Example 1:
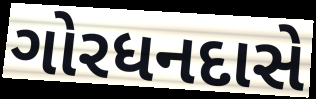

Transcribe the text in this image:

ગોરધનદાસે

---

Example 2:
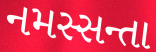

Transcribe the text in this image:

નમસ્સન્તા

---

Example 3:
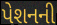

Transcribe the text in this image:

પેશનની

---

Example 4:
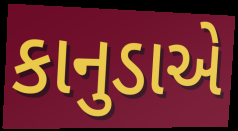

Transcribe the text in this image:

કાનુડાએ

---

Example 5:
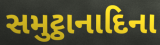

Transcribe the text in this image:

સમુટ્ઠાનાદિના